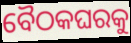
ବୈଠକଘରକୁ